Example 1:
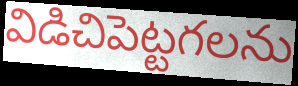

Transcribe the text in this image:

విడిచిపెట్టగలను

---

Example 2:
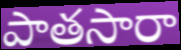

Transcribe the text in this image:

పాతసారా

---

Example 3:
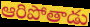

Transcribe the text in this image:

ఆరిపోతాడు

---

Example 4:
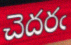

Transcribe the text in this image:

చెదరఁ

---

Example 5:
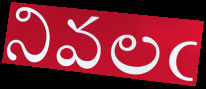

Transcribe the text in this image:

నివలఁ